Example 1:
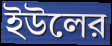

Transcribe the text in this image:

ইউলের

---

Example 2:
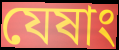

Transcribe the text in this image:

যেষাং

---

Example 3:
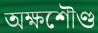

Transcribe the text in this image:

অক্ষশৌণ্ড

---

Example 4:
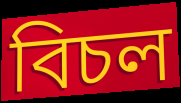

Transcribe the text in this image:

বিচল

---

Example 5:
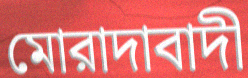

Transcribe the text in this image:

মোরাদাবাদী